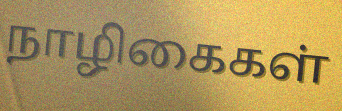
நாழிகைகள்